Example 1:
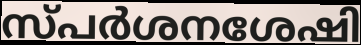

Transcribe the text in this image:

സ്പർശനശേഷി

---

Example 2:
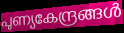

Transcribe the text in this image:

പുണ്യകേന്ദ്രങ്ങൾ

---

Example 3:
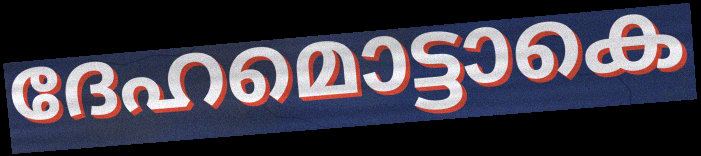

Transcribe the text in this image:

ദേഹമൊട്ടാകെ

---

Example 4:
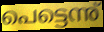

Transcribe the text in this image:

പെട്ടെന്നു്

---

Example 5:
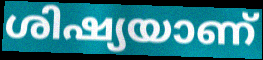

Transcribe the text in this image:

ശിഷ്യയാണ്